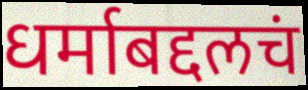
धर्माबद्दलचं